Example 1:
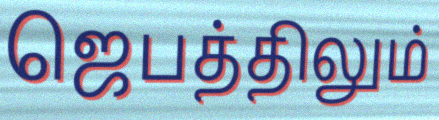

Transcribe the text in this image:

ஜெபத்திலும்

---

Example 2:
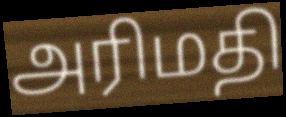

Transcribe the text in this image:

அரிமதி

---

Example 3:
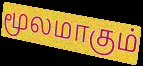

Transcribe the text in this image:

மூலமாகும்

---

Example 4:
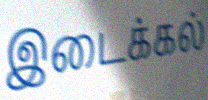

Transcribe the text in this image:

இடைக்கல்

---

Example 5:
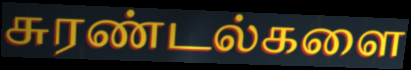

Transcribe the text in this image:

சுரண்டல்களை